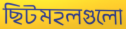
ছিটমহলগুলো